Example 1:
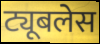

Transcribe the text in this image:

ट्यूबलेस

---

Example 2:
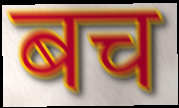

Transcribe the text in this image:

बच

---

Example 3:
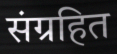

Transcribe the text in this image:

संग्रहित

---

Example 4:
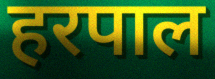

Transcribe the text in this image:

हरपाल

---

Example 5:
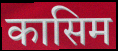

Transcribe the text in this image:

कासिम